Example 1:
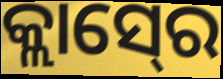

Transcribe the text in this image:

କ୍ଲାସ୍‍ରେ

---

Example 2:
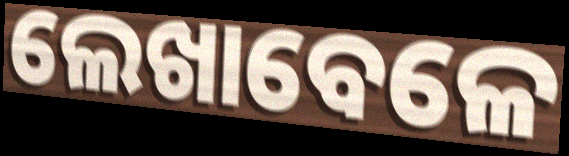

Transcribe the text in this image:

ଲେଖାବେଳେ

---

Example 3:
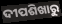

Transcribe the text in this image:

ଦୀପଶିଖାରୁ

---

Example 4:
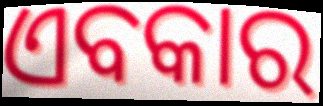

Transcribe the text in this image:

ଏବକାର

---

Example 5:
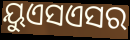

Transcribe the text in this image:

ୟୁଏସଏସର